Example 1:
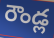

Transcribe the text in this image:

రౌండ్ల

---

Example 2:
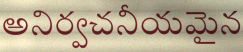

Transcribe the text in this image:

అనిర్వచనీయమైన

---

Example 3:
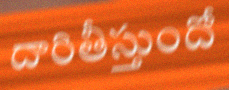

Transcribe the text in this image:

దారితీస్తుందో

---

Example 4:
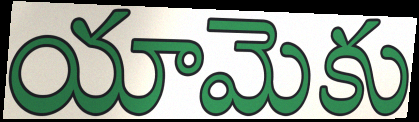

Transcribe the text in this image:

యామెకు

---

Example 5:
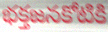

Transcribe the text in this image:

భక్తజనకోటికి